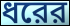
ধরের